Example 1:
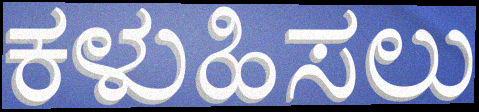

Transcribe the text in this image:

ಕಳುಹಿಸಲು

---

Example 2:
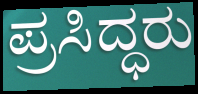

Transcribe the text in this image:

ಪ್ರಸಿದ್ಧರು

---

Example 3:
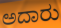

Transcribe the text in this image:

ಅದಾರು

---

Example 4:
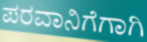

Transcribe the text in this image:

ಪರವಾನಿಗೆಗಾಗಿ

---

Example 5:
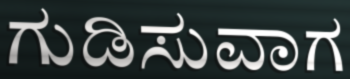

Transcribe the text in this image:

ಗುಡಿಸುವಾಗ